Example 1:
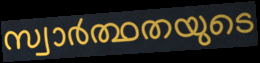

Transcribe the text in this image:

സ്വാർത്ഥതയുടെ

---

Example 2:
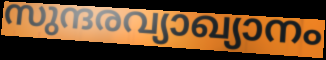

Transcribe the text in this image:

സുന്ദരവ്യാഖ്യാനം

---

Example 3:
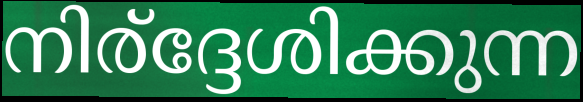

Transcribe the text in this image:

നിര്ദ്ദേശിക്കുന്ന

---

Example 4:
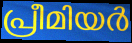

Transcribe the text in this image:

പ്രീമിയർ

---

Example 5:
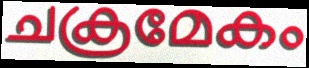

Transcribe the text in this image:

ചക്രമേകം